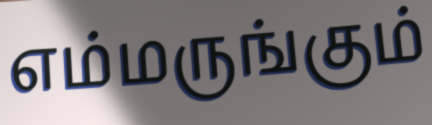
எம்மருங்கும்